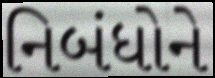
નિબંધોને